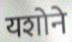
यशोने